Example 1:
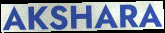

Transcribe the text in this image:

AKSHARA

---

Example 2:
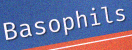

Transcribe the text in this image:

Basophils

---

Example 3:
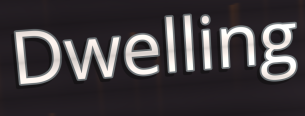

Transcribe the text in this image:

Dwelling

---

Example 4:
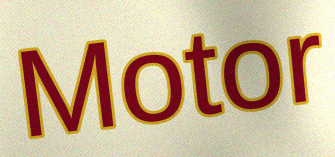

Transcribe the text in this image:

Motor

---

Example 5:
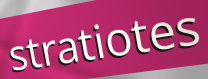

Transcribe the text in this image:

stratiotes